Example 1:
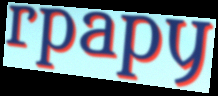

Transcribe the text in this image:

rpapy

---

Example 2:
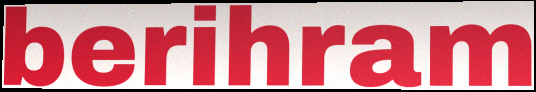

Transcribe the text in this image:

berihram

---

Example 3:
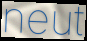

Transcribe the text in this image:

neut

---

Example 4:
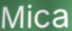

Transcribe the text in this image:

Mica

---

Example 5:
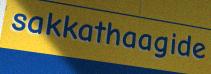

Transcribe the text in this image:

sakkathaagide